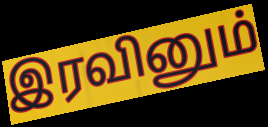
இரவினும்